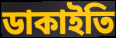
ডাকাইতি